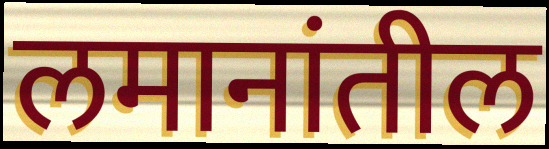
लमानांतील